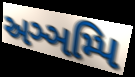
અઞ્ઞમ્પિ